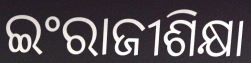
ଇଂରାଜୀଶିକ୍ଷା